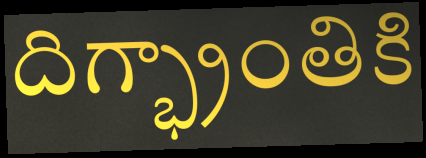
దిగ్భ్రాంతికి